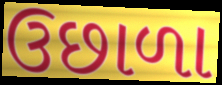
ઉછાળા